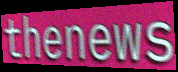
thenews